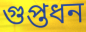
গুপ্তধন